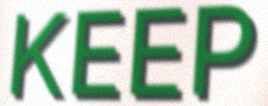
KEEP